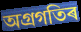
অগ্ৰগতিৰ